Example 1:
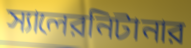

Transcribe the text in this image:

স্যালেরনিটানার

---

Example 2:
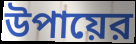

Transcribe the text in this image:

উপায়ের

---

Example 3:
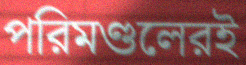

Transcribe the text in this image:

পরিমণ্ডলেরই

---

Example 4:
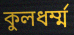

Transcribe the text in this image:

কুলধর্ম্ম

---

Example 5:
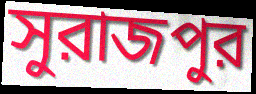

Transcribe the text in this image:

সুরাজপুর